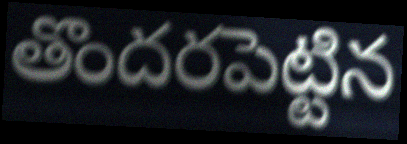
తొందరపెట్టిన